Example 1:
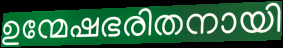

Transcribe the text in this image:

ഉന്മേഷഭരിതനായി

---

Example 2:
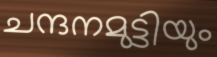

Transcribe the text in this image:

ചന്ദനമുട്ടിയും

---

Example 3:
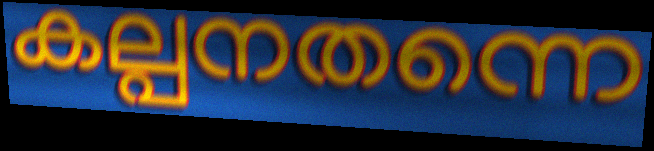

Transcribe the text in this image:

കല്പനതന്നെ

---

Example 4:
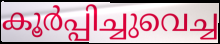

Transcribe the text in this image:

കൂർപ്പിച്ചുവെച്ച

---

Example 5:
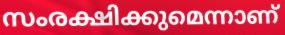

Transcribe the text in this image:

സംരക്ഷിക്കുമെന്നാണ്